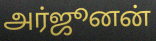
அர்ஜூனன்